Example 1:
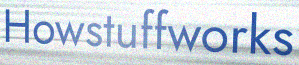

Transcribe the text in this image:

Howstuffworks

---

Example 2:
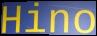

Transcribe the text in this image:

Hino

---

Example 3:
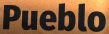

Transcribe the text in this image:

Pueblo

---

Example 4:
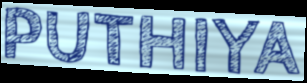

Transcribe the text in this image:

PUTHIYA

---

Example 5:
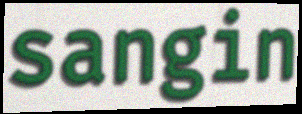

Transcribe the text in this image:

sangin